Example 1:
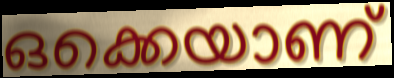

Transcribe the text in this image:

ഒക്കെയാണ്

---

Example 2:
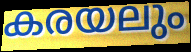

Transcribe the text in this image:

കരയലും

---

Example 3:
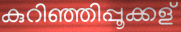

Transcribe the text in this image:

കുറിഞ്ഞിപ്പൂക്കള്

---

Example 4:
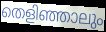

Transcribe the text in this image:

തെളിഞ്ഞാലും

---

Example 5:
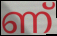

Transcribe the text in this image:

ണ്